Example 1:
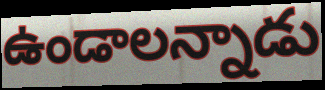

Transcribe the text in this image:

ఉండాలన్నాడు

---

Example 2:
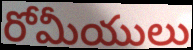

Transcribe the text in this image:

రోమీయులు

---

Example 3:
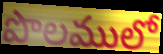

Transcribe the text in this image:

పొలములో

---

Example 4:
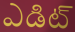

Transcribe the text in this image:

ఎడిట్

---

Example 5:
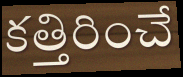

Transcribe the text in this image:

కత్తిరించే